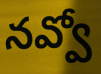
నవ్వో